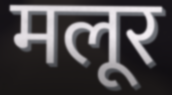
मलूर